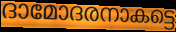
ദാമോദരനാകട്ടെ